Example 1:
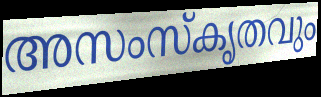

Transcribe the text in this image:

അസംസ്കൃതവും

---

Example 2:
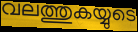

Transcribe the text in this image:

വലത്തുകയ്യുടെ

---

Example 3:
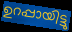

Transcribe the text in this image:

ഉറപ്പായിട്ടു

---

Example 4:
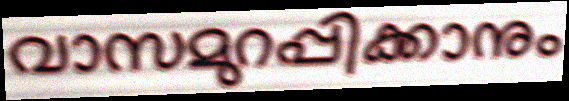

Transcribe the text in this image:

വാസമുറപ്പിക്കാനും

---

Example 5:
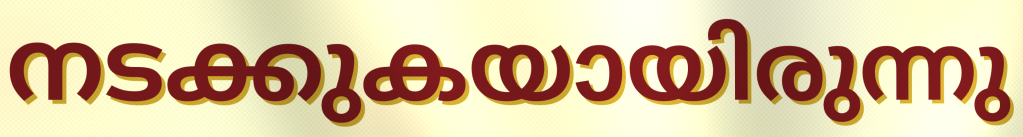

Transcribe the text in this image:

നടക്കുകയായിരുന്നു